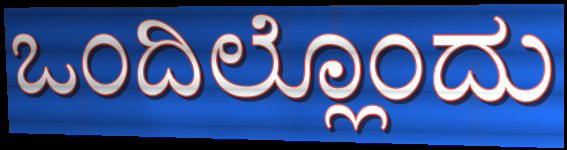
ಒಂದಿಲ್ಲೊಂದು